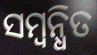
ସମ୍ଵନ୍ଧିତ